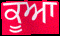
ਕੂਆ